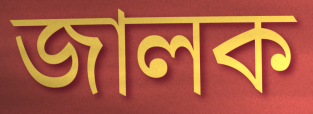
জালক